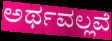
ಅರ್ಥವಲ್ಲವೆ